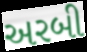
અરબી